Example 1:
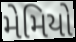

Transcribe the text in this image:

મેમિયો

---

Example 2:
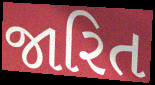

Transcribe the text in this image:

જારિત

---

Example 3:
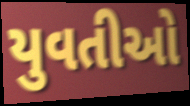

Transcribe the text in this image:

યુવતીઓ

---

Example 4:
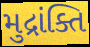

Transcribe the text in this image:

મુદ્રાંક્તિ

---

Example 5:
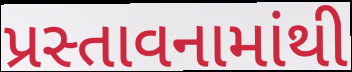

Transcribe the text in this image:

પ્રસ્તાવનામાંથી